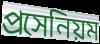
প্রসেনিয়ম